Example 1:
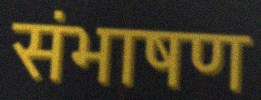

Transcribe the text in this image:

संभाषण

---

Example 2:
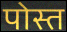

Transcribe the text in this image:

पोस्त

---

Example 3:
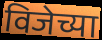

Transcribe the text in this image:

विजेच्या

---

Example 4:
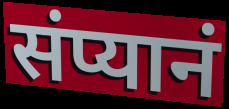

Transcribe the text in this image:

संप्यानं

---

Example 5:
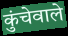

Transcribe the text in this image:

कुंचेवाले